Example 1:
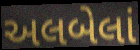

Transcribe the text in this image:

અલબેલાં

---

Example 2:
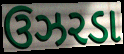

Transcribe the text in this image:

ઉઝરડા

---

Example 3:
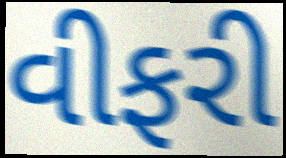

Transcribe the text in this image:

વીફરી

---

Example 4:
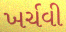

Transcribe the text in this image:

ખર્ચવી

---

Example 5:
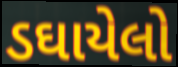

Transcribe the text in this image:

ડઘાયેલો